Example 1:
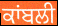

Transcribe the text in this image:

ਕਾਂਬਲੀ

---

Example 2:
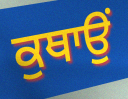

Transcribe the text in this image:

ਕੁਥਾਉਂ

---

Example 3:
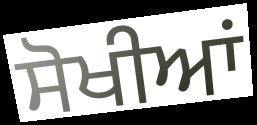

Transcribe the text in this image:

ਸੋਖੀਆਂ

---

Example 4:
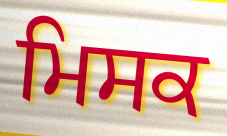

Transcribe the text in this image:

ਮਿਸਕ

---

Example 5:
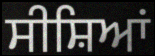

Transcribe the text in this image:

ਸੀਸ਼ਿਆਂ